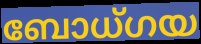
ബോധ്ഗയ